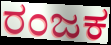
ರಂಜಕ